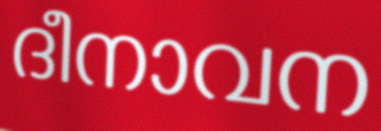
ദീനാവന